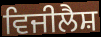
ਵਿਜੀਲੈਸ਼